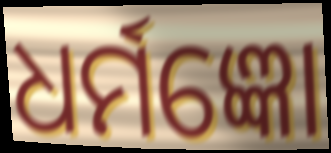
ଧର୍ମଜ୍ଞୋ